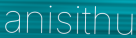
anisithu